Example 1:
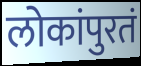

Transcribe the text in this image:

लोकांपुरतं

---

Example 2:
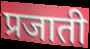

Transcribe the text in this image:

प्रजाती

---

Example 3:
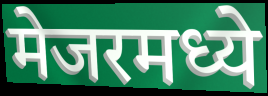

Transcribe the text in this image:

मेजरमध्ये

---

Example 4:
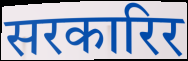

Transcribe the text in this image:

सरकारिर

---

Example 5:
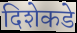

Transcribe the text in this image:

दिशेकडे